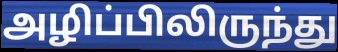
அழிப்பிலிருந்து